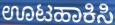
ಊಟಹಾಕಿಸಿ